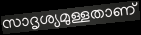
സാദൃശ്യമുള്ളതാണ്